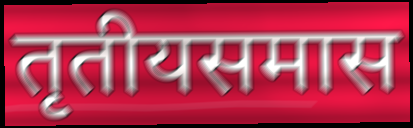
तृतीयसमास